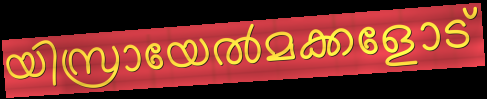
യിസ്രായേൽമക്കളോട്